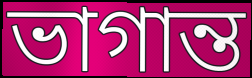
ভাগান্ত